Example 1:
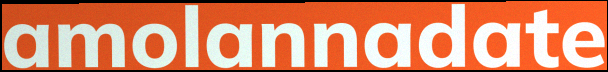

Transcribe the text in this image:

amolannadate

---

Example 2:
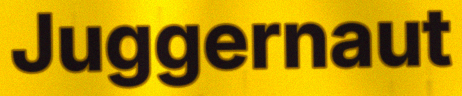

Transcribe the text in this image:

Juggernaut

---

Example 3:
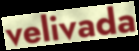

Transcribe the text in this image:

velivada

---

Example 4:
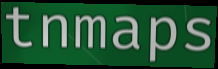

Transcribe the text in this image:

tnmaps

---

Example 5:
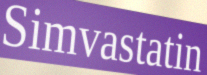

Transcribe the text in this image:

Simvastatin